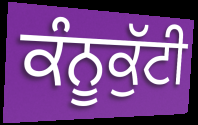
ਕੰਨੂਕੁੱਟੀ